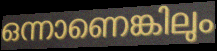
ഒന്നാണെങ്കിലും